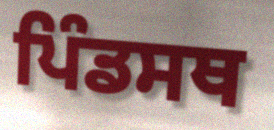
ਪਿੰਡਸਥ